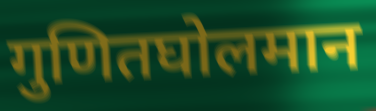
गुणितघोलमान